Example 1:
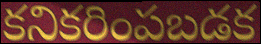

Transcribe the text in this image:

కనికరింపబడక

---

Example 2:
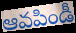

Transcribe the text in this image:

ఆవపిండీ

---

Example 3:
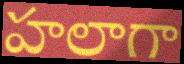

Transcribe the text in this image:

హలాగా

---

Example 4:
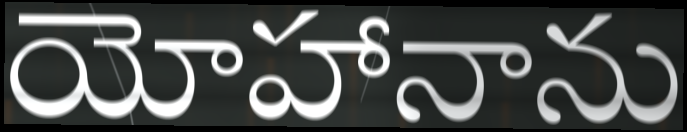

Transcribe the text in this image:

యోహానాను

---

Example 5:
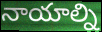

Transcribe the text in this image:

నాయాల్ని